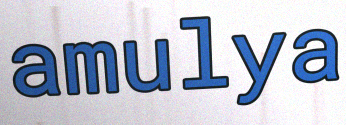
amulya